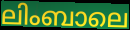
ലിംബാലെ